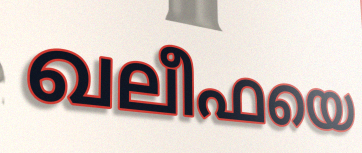
ഖലീഫയെ